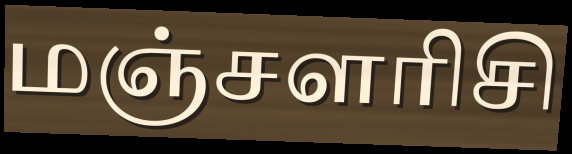
மஞ்சளரிசி